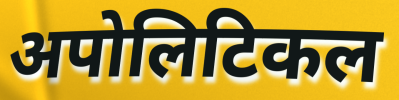
अपोलिटिकल